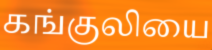
கங்குலியை